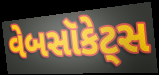
વેબસૉકેટ્સ